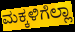
ಮಕ್ಕಳಿಗೆಲ್ಲಾ